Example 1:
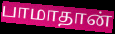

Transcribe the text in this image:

பாமாதான்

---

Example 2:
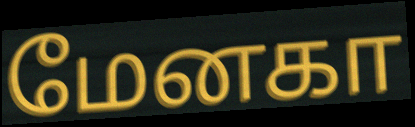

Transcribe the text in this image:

மேனகா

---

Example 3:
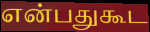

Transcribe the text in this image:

என்பதுகூட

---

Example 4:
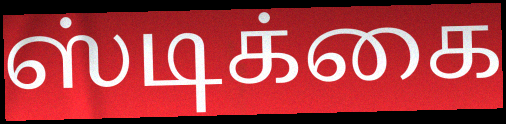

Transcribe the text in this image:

ஸ்டிக்கை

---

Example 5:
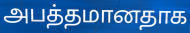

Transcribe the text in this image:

அபத்தமானதாக